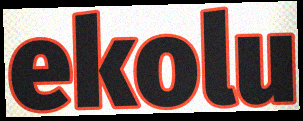
ekolu